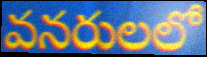
వనరులలో